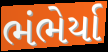
ભંભેર્યા